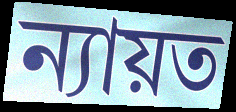
ন্যায়ত